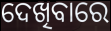
ଦେଖିବାରେ